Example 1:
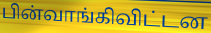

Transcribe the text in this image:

பின்வாங்கிவிட்டன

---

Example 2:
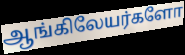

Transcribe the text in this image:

ஆங்கிலேயர்களோ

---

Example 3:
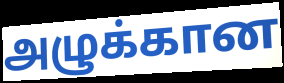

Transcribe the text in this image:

அழுக்கான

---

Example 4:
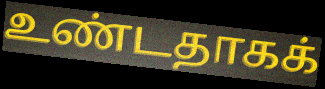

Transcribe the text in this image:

உண்டதாகக்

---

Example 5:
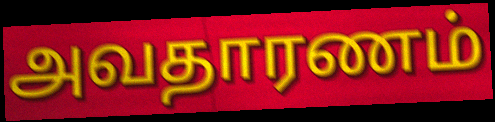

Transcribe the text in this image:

அவதாரணம்